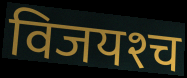
विजयश्च